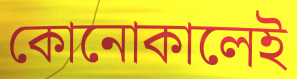
কোনোকালেই